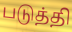
படுத்தி